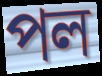
পল